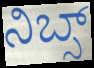
ನಿಬ್ಸ್